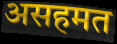
असहमत